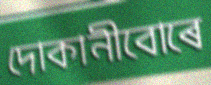
দোকানীবোৰে